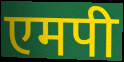
एमपी